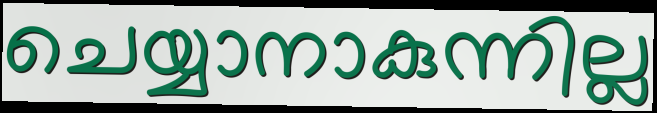
ചെയ്യാനാകുന്നില്ല